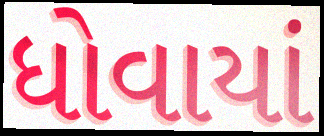
ધોવાયાં